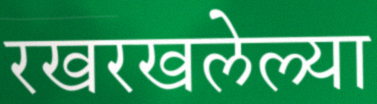
रखरखलेल्या